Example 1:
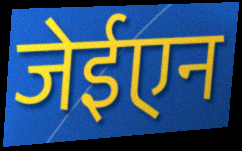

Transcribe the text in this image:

जेईएन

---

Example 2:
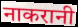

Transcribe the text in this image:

नाकरानी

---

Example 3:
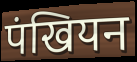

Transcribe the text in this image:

पंखियन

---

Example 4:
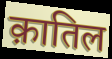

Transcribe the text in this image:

क़ातिल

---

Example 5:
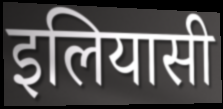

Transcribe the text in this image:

इलियासी